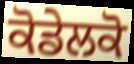
ਕੋਡੇਲਕੋ